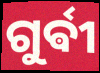
ଗୁର୍ଵୀ